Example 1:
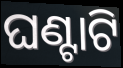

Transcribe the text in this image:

ଘଣ୍ଟାଟି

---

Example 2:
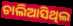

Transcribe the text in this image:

ଚାଲିଆସିଥିଲ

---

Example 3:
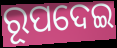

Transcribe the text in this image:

ରୂପଦେଇ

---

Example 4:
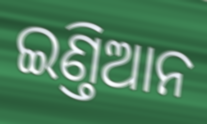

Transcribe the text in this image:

ଇଣ୍ତିଆନ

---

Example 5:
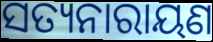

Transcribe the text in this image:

ସତ୍ୟନାରାୟଣ